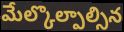
మేల్కొల్పాల్సిన